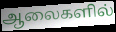
ஆலைகளில்